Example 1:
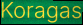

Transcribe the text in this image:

Koragas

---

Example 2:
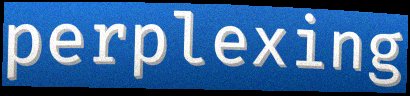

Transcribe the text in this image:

perplexing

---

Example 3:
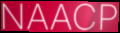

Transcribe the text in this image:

NAACP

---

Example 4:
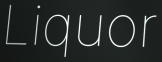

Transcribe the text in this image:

Liquor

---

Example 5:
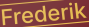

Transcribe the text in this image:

Frederik